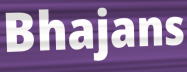
Bhajans